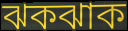
ঝকঝাক